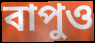
বাপুও